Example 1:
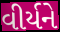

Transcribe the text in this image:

વીર્યને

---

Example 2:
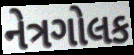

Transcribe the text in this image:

નેત્રગોલક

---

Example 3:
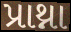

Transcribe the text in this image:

પ્રાથ્ના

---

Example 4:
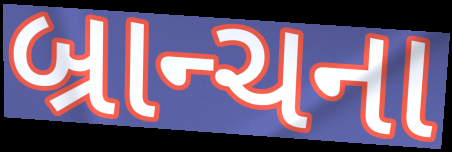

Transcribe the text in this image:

બ્રાન્ચના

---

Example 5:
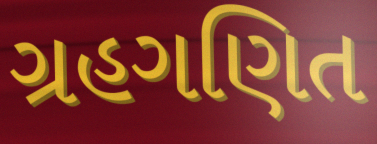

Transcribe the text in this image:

ગ્રહગણિત